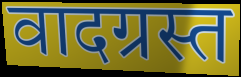
वादग्रस्त